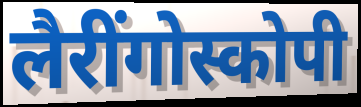
लैरींगोस्कोपी